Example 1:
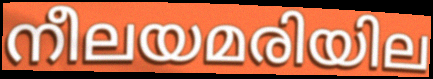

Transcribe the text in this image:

നീലയമരിയില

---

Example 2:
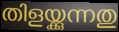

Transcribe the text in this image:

തിളയ്ക്കുന്നതു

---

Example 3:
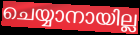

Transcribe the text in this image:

ചെയ്യാനായില്ല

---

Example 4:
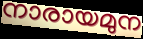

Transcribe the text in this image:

നാരായമുന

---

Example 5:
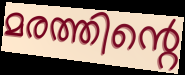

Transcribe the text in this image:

മരത്തിന്റെ